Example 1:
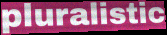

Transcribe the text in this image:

pluralistic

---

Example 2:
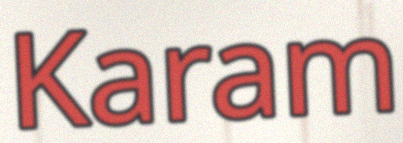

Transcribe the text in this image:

Karam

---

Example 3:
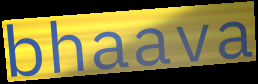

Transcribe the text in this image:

bhaava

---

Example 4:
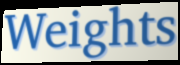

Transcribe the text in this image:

Weights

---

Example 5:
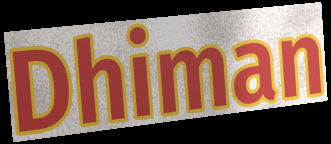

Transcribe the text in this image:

Dhiman